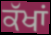
ਕੱਖਾਂ